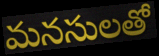
మనసులతో